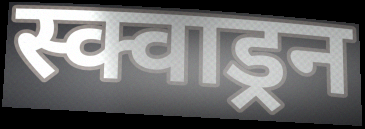
स्क्वाड्रन